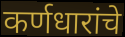
कर्णधारांचे